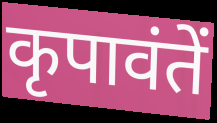
कृपावंतें